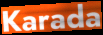
Karada